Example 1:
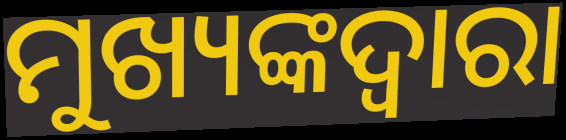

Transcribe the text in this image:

ମୁଖ୍ୟଙ୍କଦ୍ଵାରା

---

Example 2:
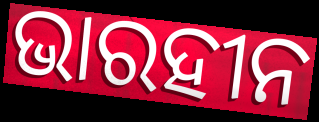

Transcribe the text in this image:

ଭାରହୀନ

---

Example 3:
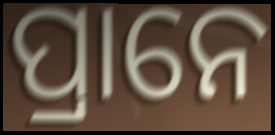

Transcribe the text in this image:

ପ୍ରାନେ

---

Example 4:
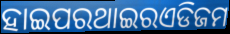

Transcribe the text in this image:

ହାଇପରଥାଇରଏଡିଜମ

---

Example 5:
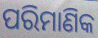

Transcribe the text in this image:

ପରିମାଣିକ